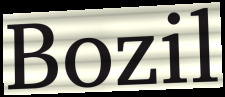
Bozil